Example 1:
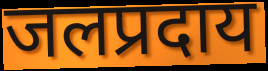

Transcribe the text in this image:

जलप्रदाय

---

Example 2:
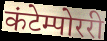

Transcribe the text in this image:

कंटेम्पोररी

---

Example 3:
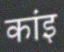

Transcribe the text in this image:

कांइ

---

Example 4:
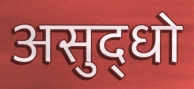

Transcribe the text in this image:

असुद्धो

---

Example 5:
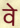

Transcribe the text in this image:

वे